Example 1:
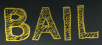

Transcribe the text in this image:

BAIL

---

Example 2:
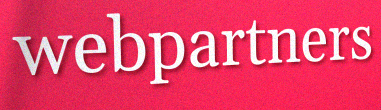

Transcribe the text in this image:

webpartners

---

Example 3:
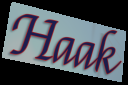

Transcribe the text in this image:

Haak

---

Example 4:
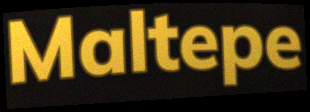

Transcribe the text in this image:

Maltepe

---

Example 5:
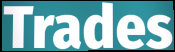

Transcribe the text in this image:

Trades